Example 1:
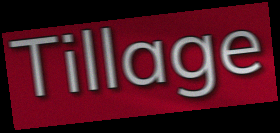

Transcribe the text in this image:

Tillage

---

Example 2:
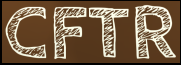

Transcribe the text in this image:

CFTR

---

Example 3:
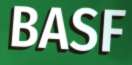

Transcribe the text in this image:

BASF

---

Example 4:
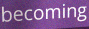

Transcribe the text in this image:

becoming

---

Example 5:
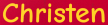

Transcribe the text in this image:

Christen